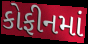
કોફીનમાં